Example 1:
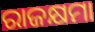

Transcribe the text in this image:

ରାଜକ୍ଷମା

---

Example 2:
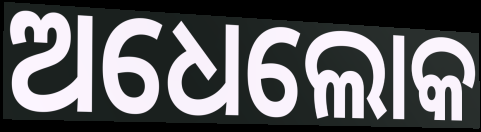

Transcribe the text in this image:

ଅଧେଲୋକ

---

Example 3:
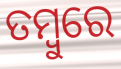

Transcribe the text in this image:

ତମ୍ବୁରେ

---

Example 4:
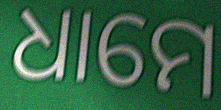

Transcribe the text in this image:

ଧାମେ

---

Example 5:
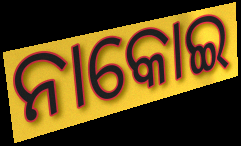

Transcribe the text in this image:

ନାକୋଇ